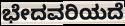
ಭೇದವರಿಯದೆ